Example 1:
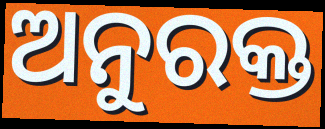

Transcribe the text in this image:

ଅନୁରକ୍ତ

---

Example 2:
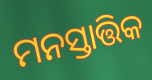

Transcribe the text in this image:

ମନସ୍ତାତ୍ତିକ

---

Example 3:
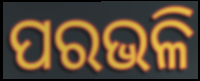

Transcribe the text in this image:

ପରଭଳି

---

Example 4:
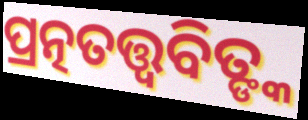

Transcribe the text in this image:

ପ୍ରତ୍ନତତ୍ତ୍ୱବିତ୍ଙ୍କ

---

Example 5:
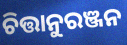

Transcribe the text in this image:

ଚିତ୍ତାନୁରଞ୍ଜନ